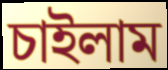
চাইলাম